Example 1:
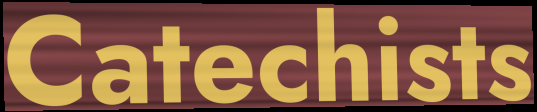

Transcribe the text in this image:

Catechists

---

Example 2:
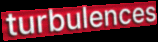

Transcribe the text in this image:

turbulences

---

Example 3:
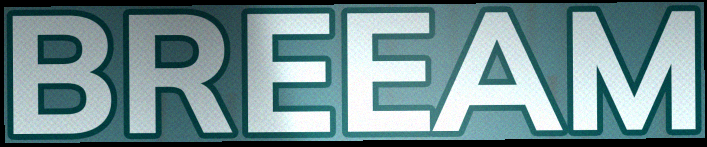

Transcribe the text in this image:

BREEAM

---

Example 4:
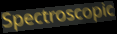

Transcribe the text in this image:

Spectroscopic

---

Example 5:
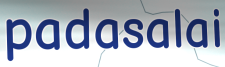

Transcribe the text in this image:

padasalai